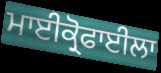
ਮਾਈਕ੍ਰੋਫਾਈਲਾ